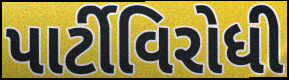
પાર્ટીવિરોધી